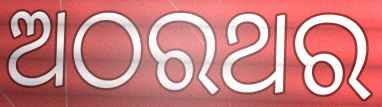
ଅଠରଥର